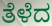
ತೆಳೆದ